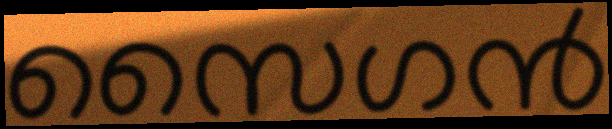
സൈഗൻ